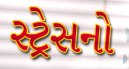
સ્ટ્રેસનો